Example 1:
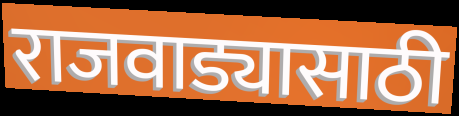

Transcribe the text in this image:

राजवाड्यासाठी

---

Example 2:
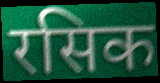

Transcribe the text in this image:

रसिक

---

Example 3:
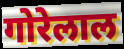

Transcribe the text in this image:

गोरेलाल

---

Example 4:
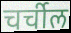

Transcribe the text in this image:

चर्चील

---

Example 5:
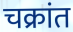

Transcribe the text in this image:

चक्रांत